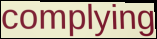
complying